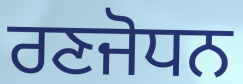
ਰਣਜੋਧਨ